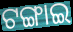
ଟଙ୍ଗାଇ